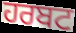
ਹਰਬਟ